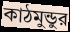
কাঠমুন্ডুর